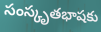
సంస్కృతభాషకు